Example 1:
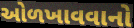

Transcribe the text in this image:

ઓળખાવવાનો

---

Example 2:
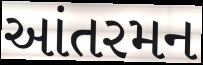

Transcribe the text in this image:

આંતરમન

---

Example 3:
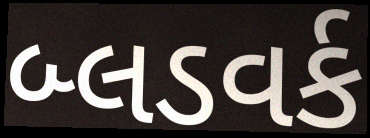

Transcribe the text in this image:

બ્લડવર્ક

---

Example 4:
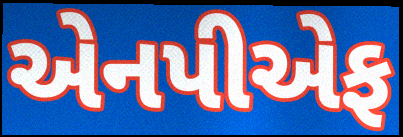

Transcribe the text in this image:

એનપીએફ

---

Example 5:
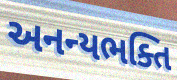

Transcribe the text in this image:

અનન્યભક્તિ